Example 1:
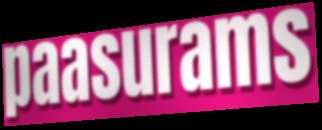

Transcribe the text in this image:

paasurams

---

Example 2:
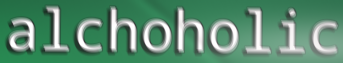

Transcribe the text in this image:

alchoholic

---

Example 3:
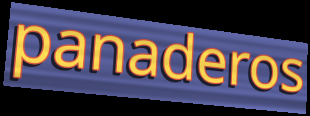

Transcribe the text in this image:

panaderos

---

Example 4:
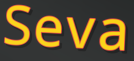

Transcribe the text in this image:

Seva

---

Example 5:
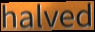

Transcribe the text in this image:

halved